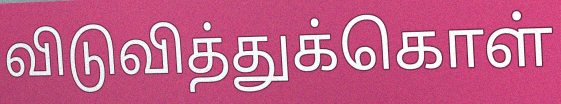
விடுவித்துக்கொள்